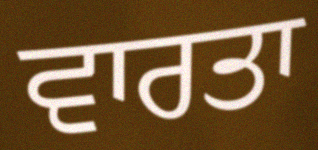
ਵਾਰਤਾ